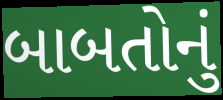
બાબતોનું